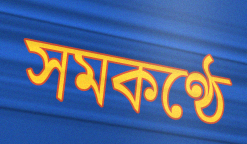
সমকণ্ঠে